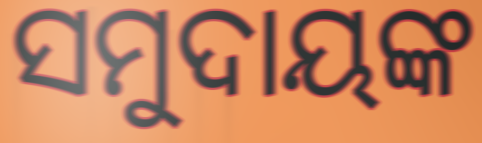
ସମୁଦାୟଙ୍କ